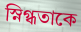
স্নিগ্ধতাকে